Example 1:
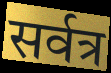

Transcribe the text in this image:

सर्वत्र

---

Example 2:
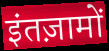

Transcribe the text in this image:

इंतज़ामों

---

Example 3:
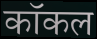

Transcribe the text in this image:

कॉकल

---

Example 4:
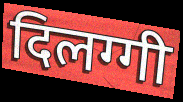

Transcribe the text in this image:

दिलग्गी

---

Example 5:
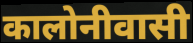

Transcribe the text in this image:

कालोनीवासी